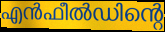
എൻഫീൽഡിന്റെ